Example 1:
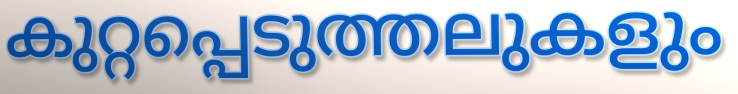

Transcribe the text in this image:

കുറ്റപ്പെടുത്തലുകളും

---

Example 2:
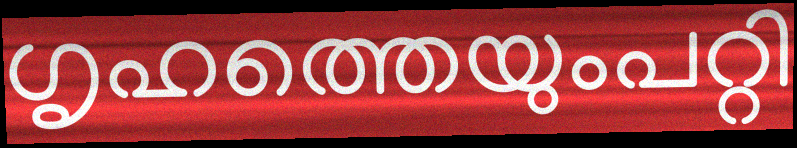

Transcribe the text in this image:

ഗൃഹത്തെയുംപറ്റി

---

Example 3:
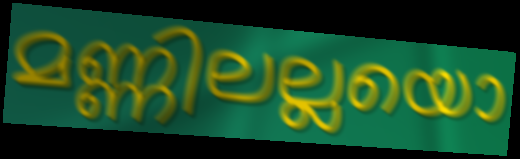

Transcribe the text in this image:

മണ്ണിലല്ലയൊ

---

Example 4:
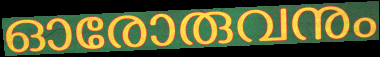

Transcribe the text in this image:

ഓരോരുവനും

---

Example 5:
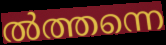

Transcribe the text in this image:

ൽത്തന്നെ